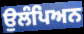
ਉਲੰਪਿਅਨ